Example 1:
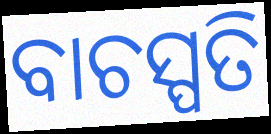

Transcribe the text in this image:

ବାଚସ୍ପତି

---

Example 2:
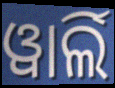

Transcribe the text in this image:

ୱାର୍ଲି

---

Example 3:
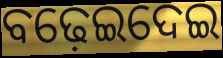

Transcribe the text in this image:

ବଢ଼େଇଦେଇ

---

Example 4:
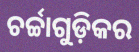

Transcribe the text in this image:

ଚର୍ଚ୍ଚାଗୁଡ଼ିକର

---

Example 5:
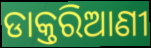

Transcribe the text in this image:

ଡାକ୍ତରିଆଣୀ